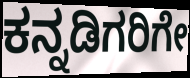
ಕನ್ನಡಿಗರಿಗೇ